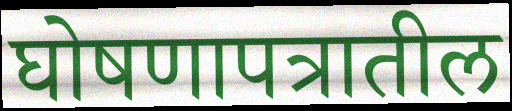
घोषणापत्रातील